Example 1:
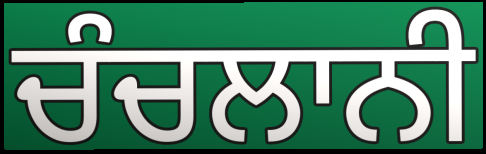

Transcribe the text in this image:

ਚੰਚਲਾਨੀ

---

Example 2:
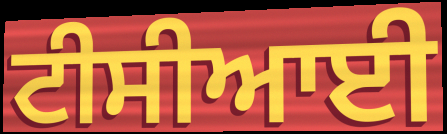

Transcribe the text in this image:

ਟੀਸੀਆਈ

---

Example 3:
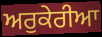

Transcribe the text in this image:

ਅਰੁਕੇਰੀਆ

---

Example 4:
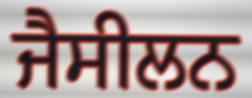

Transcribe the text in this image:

ਜੈਸੀਲਨ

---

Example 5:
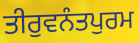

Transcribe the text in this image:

ਤੀਰੁਵਨੰਤਪੁਰਮ